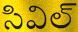
సివిల్